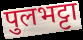
पुलभट्टा